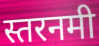
स्तरनमी